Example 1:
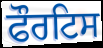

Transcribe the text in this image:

ਫੌਰਟਿਸ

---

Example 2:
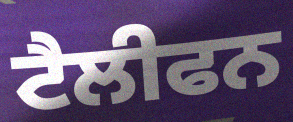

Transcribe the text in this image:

ਟੈਲੀਫਨ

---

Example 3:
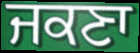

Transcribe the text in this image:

ਜਕਣਾ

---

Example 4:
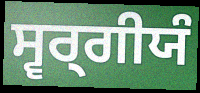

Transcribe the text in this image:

ਸ੍ਵਰ੍ਗੀਯੰ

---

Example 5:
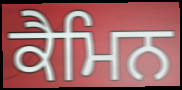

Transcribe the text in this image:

ਕੈਮਿਨ